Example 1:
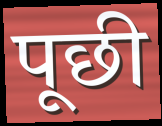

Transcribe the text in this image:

पूछी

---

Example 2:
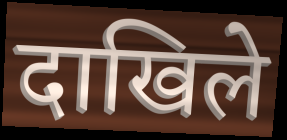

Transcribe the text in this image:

दाखिले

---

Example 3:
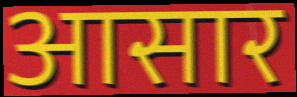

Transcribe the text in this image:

आसार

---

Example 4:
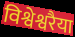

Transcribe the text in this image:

विश्वेश्वरैया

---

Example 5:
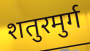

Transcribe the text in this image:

शतुरमुर्ग